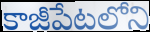
కాజీపేటలోని